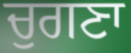
ਚੁਗਣਾ